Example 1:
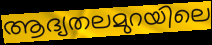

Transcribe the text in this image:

ആദ്യതലമുറയിലെ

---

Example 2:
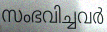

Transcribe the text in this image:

സംഭവിച്ചവർ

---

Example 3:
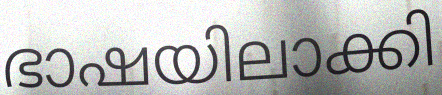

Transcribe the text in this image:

ഭാഷയിലാക്കി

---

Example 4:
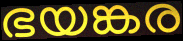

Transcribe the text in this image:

ഭയങ്കര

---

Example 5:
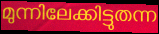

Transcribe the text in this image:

മുന്നിലേക്കിട്ടുതന്ന